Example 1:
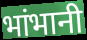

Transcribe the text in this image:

भांभानी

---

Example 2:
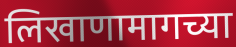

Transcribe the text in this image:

लिखाणामागच्या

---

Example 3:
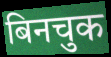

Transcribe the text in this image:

बिनचुक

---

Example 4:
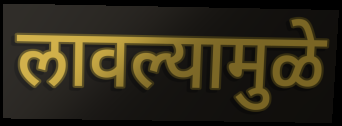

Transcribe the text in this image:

लावल्यामुळे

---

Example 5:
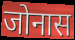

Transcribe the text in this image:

जोनास